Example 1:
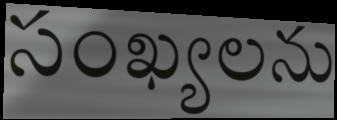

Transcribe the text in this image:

సంఖ్యలను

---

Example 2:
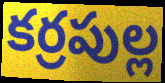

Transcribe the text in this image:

కర్రపుల్ల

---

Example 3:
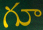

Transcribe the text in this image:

గూ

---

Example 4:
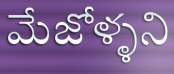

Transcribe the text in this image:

మేజోళ్ళని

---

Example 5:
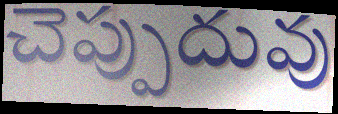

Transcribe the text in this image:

చెప్పుదువు